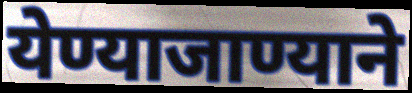
येण्याजाण्याने